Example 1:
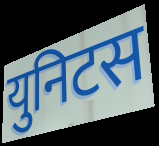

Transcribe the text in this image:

युनिटस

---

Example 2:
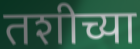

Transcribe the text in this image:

तशीच्या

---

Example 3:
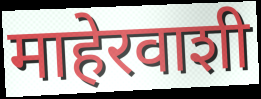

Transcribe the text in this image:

माहेरवाशी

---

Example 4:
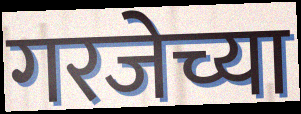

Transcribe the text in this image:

गरजेच्या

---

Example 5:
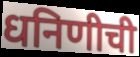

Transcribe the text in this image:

धनिणीची